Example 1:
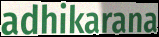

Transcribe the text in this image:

adhikarana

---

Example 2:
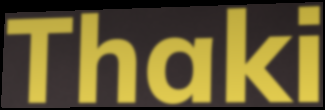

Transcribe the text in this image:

Thaki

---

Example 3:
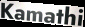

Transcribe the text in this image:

Kamathi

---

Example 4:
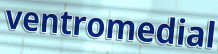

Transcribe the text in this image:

ventromedial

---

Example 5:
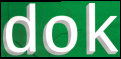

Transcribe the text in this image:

dok